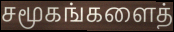
சமூகங்களைத்